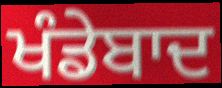
ਖੰਡੇਬਾਦ